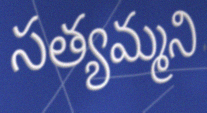
సత్యమ్మని